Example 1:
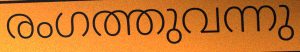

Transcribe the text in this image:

രംഗത്തുവന്നു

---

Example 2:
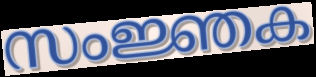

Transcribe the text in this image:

സംജ്ഞക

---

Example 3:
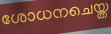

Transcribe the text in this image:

ശോധനചെയ്ത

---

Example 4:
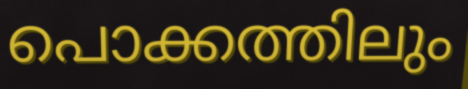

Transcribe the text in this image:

പൊക്കത്തിലും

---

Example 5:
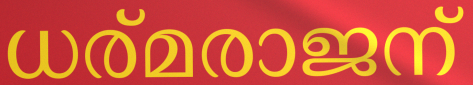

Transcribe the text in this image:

ധര്മരാജന്